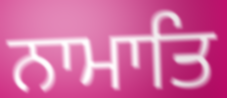
ਨਾਮਾਤਿ